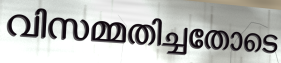
വിസമ്മതിച്ചതോടെ